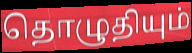
தொழுதியும்